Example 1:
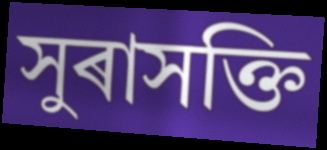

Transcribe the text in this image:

সুৰাসক্তি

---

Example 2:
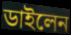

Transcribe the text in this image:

ডাইলেন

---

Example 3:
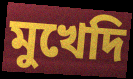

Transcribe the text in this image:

মুখেদি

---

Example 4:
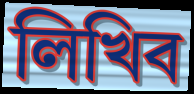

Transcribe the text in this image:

লিখিব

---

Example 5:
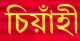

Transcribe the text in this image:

চিয়াঁহী